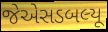
જેએસડબલ્યૂ